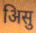
अिसु